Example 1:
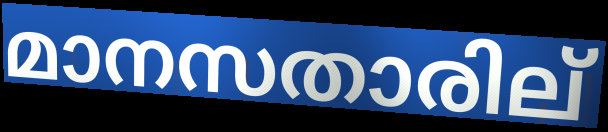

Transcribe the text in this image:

മാനസതാരില്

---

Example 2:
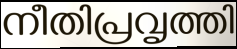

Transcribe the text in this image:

നീതിപ്രവൃത്തി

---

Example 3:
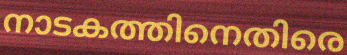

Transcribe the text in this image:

നാടകത്തിനെതിരെ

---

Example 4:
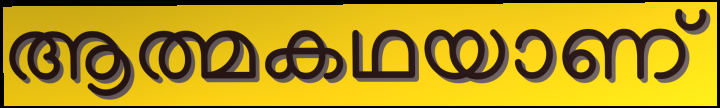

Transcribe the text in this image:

ആത്മകഥയാണ്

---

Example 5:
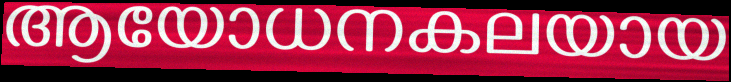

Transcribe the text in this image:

ആയോധനകലയായ